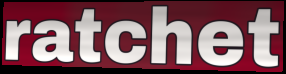
ratchet